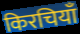
किरचियाँ